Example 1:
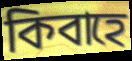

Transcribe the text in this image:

কিবাহে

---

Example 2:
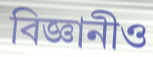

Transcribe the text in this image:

বিজ্ঞানীও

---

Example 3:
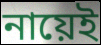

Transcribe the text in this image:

নায়েই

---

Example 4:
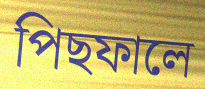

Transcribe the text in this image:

পিছফালে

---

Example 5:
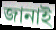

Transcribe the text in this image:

জানাই